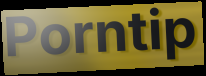
Porntip